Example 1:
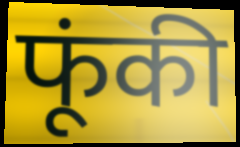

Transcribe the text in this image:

फूंकी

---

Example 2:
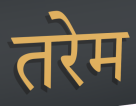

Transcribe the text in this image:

तरेम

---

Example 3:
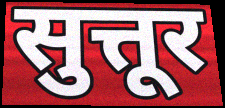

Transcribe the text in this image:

सुत्तूर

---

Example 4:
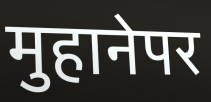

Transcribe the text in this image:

मुहानेपर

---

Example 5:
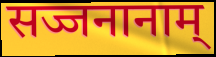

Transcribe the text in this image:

सज्जनानाम्